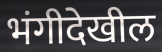
भंगीदेखील